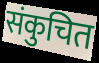
संकुचित